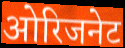
ओरिजनेट